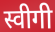
स्वीगी